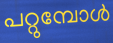
പറ്റുമ്പോൾ